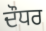
ਦੌਧਰ